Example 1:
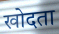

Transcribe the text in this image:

खोदता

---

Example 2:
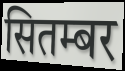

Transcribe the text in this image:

सितम्‍बर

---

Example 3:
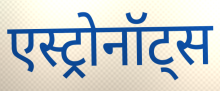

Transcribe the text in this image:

एस्ट्रोनॉट्स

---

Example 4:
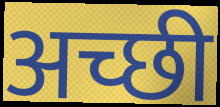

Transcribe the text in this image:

अच्छी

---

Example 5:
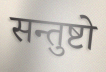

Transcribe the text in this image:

सन्तुष्टो